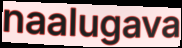
naalugava